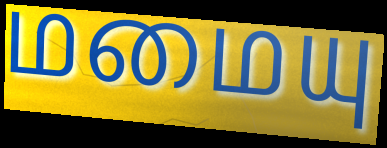
மமையு